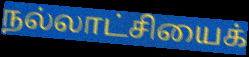
நல்லாட்சியைக்